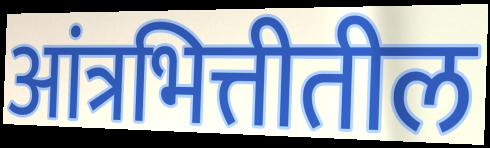
आंत्रभित्तीतील